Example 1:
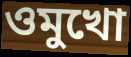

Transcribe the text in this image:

ওমুখো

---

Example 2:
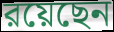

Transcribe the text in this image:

রয়েছেন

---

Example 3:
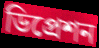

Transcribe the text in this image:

ডিপ্রেশন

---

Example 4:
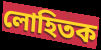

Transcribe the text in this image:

লোহিতক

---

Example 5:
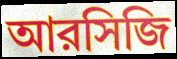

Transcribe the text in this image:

আরসিজি